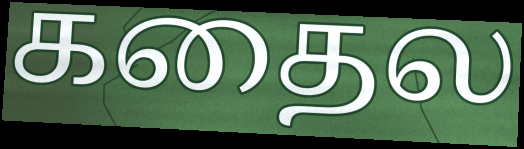
கதைல